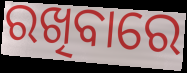
ରଖିବାରେ